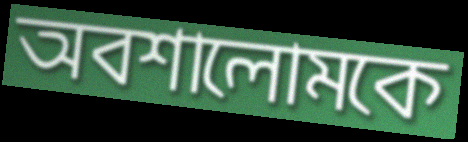
অবশালোমকে